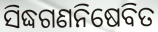
ସିଦ୍ଧଗଣନିଷେବିତ